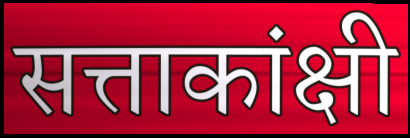
सत्ताकांक्षी